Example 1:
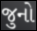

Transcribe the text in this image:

જુનો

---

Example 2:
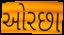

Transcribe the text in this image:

ઓરછા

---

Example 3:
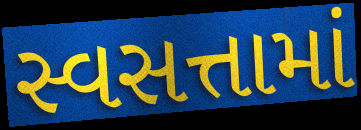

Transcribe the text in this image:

સ્વસત્તામાં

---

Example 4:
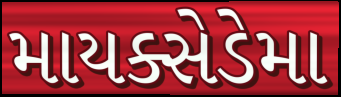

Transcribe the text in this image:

માયક્સેડેમા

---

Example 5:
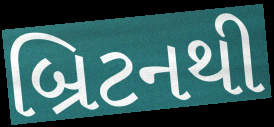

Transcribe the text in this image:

બ્રિટનથી